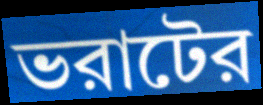
ভরাটের